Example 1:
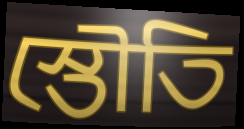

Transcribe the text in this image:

স্তৌতি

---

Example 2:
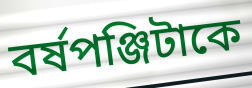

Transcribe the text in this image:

বর্ষপঞ্জিটাকে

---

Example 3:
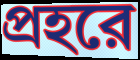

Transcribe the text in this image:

প্রহরে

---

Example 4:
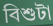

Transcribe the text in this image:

বিশুটা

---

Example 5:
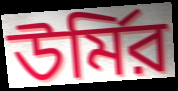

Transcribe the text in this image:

উর্মির